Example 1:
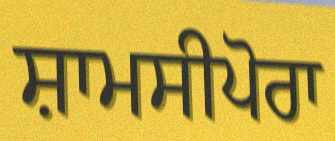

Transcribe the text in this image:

ਸ਼ਾਮਸੀਪੋਰਾ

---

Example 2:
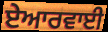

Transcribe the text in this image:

ਏਆਰਵਾਈ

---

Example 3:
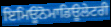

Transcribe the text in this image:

ਇਮਿਊਨੋਮਾਡਿਊਲੇਟਰੀ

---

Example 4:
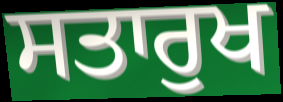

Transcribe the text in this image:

ਸਤਾਰੁਖ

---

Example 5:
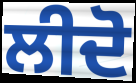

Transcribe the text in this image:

ਲੀਦੋ